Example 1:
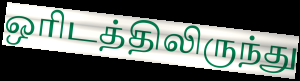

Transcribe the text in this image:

ஒரிடத்திலிருந்து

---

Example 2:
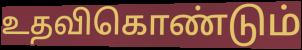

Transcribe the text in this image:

உதவிகொண்டும்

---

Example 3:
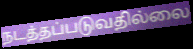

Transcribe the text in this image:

நடத்தப்படுவதில்லை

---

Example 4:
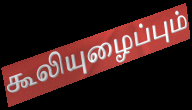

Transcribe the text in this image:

கூலியுழைப்பும்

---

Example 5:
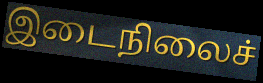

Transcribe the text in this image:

இடைநிலைச்